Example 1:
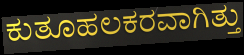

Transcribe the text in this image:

ಕುತೂಹಲಕರವಾಗಿತ್ತು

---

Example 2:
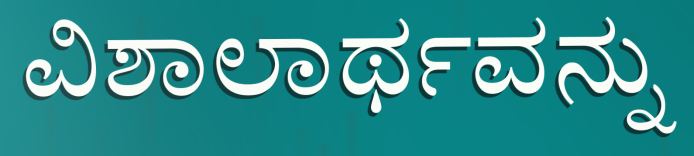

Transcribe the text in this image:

ವಿಶಾಲಾರ್ಥವನ್ನು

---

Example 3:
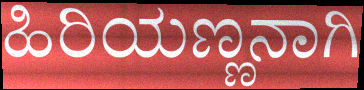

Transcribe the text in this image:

ಹಿರಿಯಣ್ಣನಾಗಿ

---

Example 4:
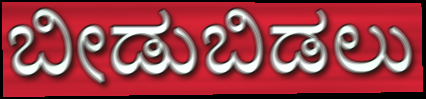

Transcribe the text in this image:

ಬೀಡುಬಿಡಲು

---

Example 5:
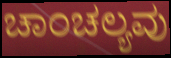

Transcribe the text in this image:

ಚಾಂಚಲ್ಯವು